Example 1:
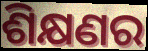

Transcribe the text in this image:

ଶିକ୍ଷଣର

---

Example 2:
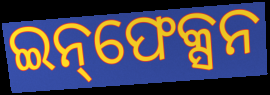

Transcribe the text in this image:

ଇନ୍‌ଫେକ୍ସନ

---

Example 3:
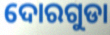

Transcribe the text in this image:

ଦୋରଗୁଡା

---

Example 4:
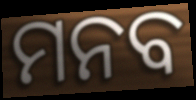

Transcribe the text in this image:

ମନବ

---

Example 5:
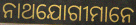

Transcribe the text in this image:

ନାଥଯୋଗୀମାନେ